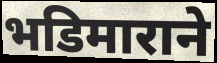
भडिमाराने